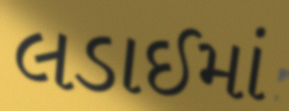
લડાઈમાં